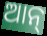
ଆନ୍